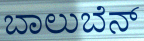
ಬಾಲುಬೆನ್